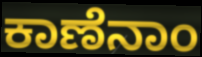
ಕಾಣೆನಾಂ